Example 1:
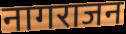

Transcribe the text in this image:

नागराजन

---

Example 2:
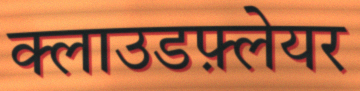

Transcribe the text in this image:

क्लाउडफ़्लेयर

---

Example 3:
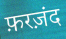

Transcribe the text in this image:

फ़रज़ंद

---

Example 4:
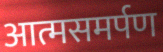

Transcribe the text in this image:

आत्मसमर्पण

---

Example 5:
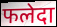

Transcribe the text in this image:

फलेदा